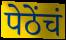
पेठेंचं